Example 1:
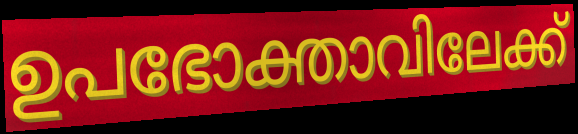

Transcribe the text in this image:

ഉപഭോക്താവിലേക്ക്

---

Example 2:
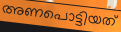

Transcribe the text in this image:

അണപൊട്ടിയത്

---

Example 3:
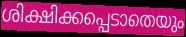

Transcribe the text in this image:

ശിക്ഷിക്കപ്പെടാതെയും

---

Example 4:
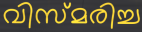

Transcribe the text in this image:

വിസ്മരിച്ച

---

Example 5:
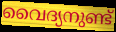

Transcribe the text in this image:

വൈദ്യനുണ്ട്